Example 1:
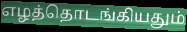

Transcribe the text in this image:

எழத்தொடங்கியதும்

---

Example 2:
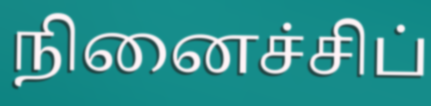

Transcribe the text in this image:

நினைச்சிப்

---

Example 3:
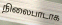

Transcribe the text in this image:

நிலைபாடாக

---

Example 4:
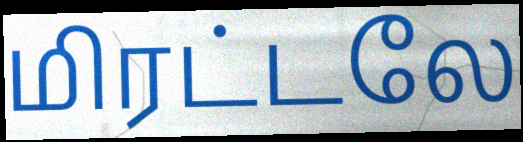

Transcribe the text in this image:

மிரட்டலே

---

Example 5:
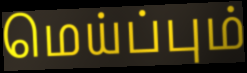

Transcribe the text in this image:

மெய்ப்பும்